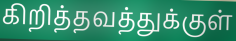
கிறித்தவத்துக்குள்